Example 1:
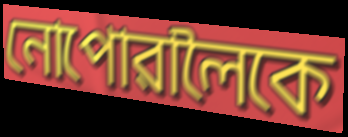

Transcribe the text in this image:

নোপোৱালৈকে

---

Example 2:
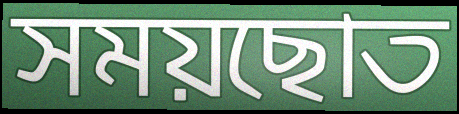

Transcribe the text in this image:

সময়ছোত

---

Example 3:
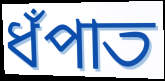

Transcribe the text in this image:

ধঁপাত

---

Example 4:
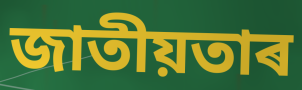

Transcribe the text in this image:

জাতীয়তাৰ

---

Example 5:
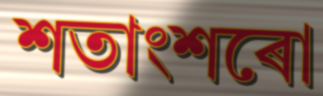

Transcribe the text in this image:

শতাংশৰো